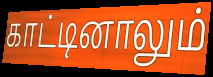
காட்டினாலும்